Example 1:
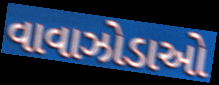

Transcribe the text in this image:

વાવાઝોડાઓ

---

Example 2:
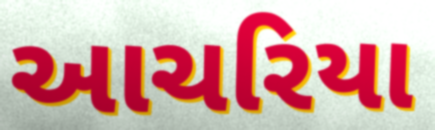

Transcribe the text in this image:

આચરિયા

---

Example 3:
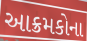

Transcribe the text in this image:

આક્રમકોના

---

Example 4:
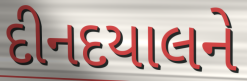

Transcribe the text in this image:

દીનદયાલને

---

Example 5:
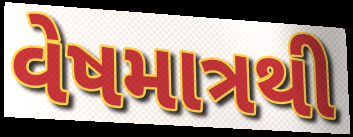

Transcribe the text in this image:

વેષમાત્રથી